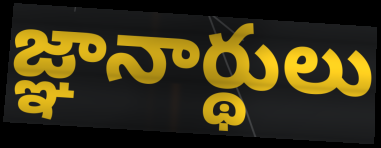
జ్ఞానార్థులు